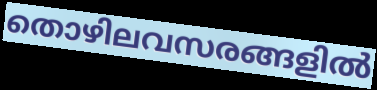
തൊഴിലവസരങ്ങളിൽ